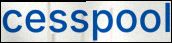
cesspool